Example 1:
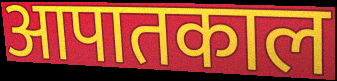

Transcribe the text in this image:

आपातकाल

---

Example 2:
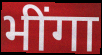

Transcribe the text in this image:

भींगा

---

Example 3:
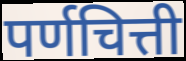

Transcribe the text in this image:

पर्णचित्ती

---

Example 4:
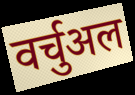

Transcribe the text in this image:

वर्चुअल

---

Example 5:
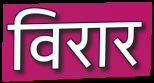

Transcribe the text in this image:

विरार